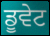
ਡੂਵੇਟ